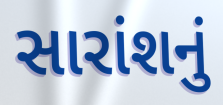
સારાંશનું